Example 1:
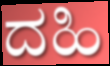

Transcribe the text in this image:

ದಹಿ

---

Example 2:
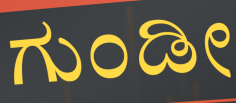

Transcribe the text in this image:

ಗುಂಡೀ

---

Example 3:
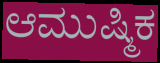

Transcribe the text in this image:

ಆಮುಷ್ಮಿಕ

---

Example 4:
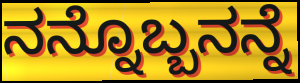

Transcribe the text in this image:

ನನ್ನೊಬ್ಬನನ್ನೆ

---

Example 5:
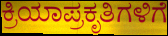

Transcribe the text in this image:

ಕ್ರಿಯಾಪ್ರಕೃತಿಗಳಿಗೆ